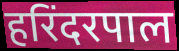
हरिंदरपाल